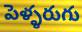
పెళ్ళరుగు